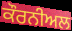
ਕੌਰਨੀਅਲ